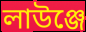
লাউঞ্জে